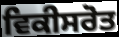
ਵਿਕੀਸਰੋਤ